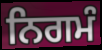
ਨਿਗਮੰ